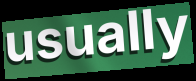
usually